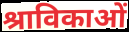
श्राविकाओं